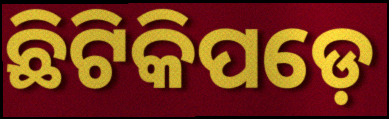
ଛିଟିକିପଡ଼େ